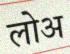
लोअ